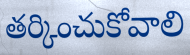
తర్కించుకోవాలి